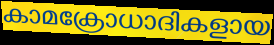
കാമക്രോധാദികളായ